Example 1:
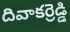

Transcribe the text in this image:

దివాకర్రెడ్డి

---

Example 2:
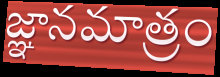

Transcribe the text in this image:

జ్ఞానమాత్రం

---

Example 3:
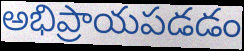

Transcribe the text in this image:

అభిప్రాయపడడం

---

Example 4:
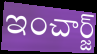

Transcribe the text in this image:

ఇంచార్జ్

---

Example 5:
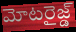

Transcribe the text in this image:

మోటరైజ్డ్